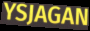
YSJAGAN